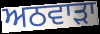
ਅਠਵਾੜਾ